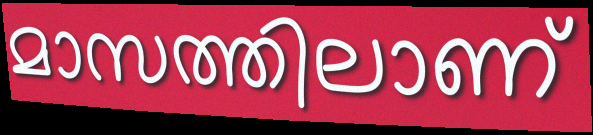
മാസത്തിലാണ്